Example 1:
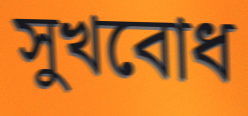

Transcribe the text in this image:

সুখবোধ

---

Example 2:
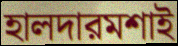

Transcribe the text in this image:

হালদারমশাই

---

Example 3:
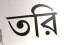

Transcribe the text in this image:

তরি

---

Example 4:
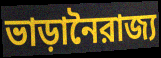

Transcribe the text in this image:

ভাড়ানৈরাজ্য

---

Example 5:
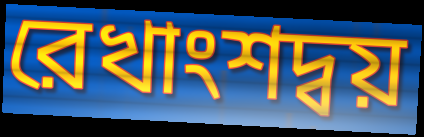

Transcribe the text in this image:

রেখাংশদ্বয়